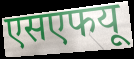
एसएफयू